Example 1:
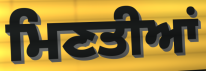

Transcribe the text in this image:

ਮਿਣਤੀਆਂ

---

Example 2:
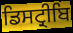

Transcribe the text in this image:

ਡਿਸਟ੍ਰੀਬਿ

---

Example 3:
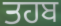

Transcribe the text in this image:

ਤਹਬ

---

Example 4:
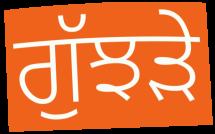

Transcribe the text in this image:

ਗੁੱਝੜੇ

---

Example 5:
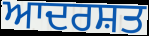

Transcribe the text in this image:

ਆਦਰਸ਼ਤ